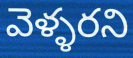
వెళ్ళరని